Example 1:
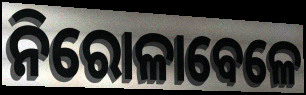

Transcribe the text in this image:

ନିରୋଳାବେଳେ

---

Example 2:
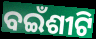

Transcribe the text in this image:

ବଇଁଶୀଟି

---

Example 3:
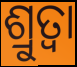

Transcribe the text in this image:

ଶ୍ରୁତ୍ଵା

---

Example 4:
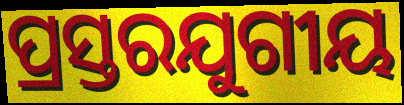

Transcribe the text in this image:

ପ୍ରସ୍ତରଯୁଗୀୟ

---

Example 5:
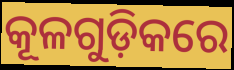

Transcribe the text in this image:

କୂଳଗୁଡ଼ିକରେ